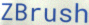
ZBrush